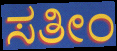
ಸತೀಂ